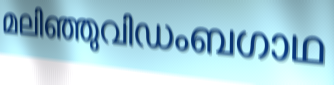
മലിഞ്ഞുവിഡംബഗാഥ